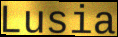
Lusia